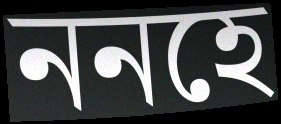
ননহে